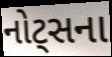
નોટ્સના